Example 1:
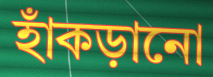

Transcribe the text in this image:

হাঁকড়ানো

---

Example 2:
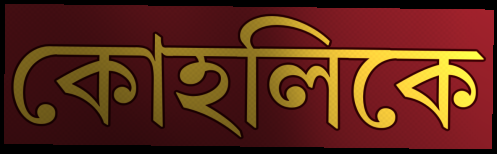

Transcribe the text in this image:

কোহলিকে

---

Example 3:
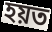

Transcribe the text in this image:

হয়ত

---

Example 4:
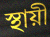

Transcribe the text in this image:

স্থায়ী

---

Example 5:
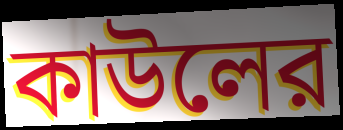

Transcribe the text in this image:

কাউলের